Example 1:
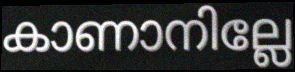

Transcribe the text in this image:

കാണാനില്ലേ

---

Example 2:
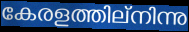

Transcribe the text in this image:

കേരളത്തില്നിന്നു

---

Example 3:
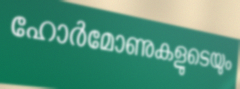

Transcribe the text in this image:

ഹോർമോണുകളുടെയും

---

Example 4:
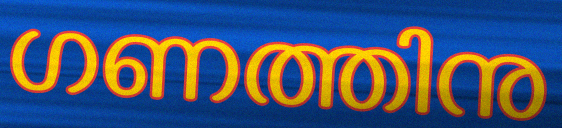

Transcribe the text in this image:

ഗണത്തിനു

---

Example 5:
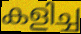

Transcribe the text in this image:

കളിച്ച